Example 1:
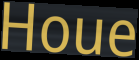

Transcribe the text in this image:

Houe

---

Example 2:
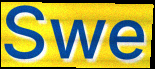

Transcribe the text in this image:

Swe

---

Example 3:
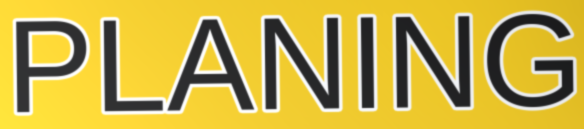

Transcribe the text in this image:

PLANING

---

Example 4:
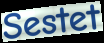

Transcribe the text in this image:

Sestet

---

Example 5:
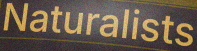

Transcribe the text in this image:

Naturalists